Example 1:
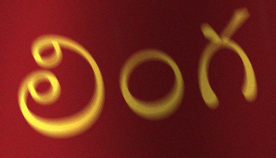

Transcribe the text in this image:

లింగ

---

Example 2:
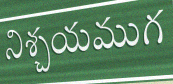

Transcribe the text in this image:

నిశ్చయముగ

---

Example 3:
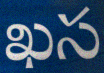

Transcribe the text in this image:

ఖస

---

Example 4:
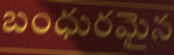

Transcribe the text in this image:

బంధురమైన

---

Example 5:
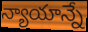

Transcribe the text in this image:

న్యాయాన్నే